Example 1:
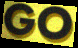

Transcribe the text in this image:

GO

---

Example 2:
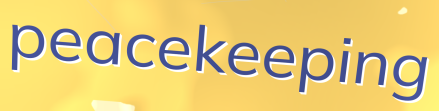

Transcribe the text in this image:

peacekeeping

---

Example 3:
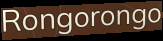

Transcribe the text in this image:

Rongorongo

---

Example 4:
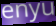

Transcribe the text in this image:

enyu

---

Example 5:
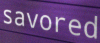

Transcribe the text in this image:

savored